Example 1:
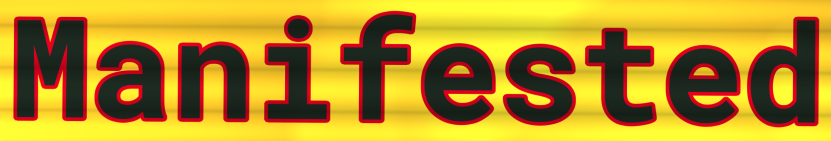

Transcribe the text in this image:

Manifested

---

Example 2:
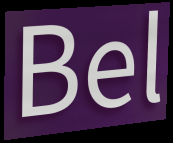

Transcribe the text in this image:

Bel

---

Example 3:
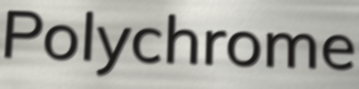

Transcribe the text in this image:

Polychrome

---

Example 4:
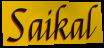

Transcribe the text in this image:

Saikal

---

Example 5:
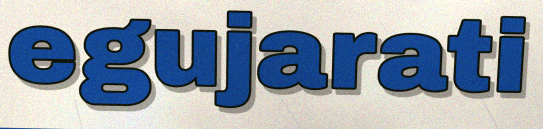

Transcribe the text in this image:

egujarati